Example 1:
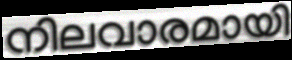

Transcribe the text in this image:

നിലവാരമായി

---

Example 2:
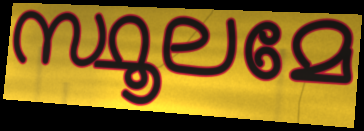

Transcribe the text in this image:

സ്ഥൂലമേ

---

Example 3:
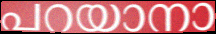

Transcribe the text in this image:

പറയാനാ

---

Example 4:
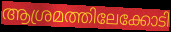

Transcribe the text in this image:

ആശ്രമത്തിലേക്കോടി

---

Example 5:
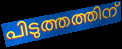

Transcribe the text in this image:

പിടുത്തത്തിന്